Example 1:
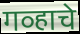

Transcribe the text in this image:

गव्हाचे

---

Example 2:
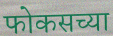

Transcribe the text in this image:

फोकसच्या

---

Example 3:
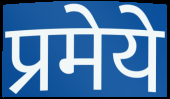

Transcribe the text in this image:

प्रमेये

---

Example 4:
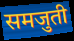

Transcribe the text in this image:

समजुती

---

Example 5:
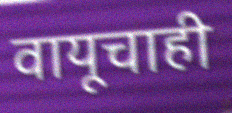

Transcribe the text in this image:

वायूचाही